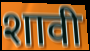
शावी